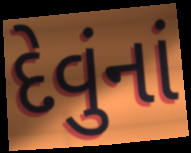
દેવુંનાં